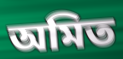
অমিত